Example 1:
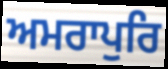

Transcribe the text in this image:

ਅਮਰਾਪੁਰਿ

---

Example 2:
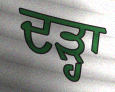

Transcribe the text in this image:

ਦੜ੍ਹਾ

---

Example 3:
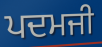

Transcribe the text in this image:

ਪਦਮਜੀ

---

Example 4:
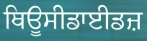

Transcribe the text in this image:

ਥਿਊਸੀਡਾਈਡਜ਼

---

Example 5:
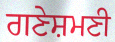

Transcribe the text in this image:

ਗਣੇਸ਼ਮਣੀ